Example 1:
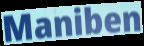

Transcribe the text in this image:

Maniben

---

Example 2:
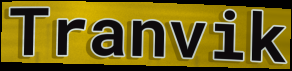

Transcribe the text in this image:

Tranvik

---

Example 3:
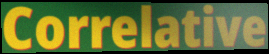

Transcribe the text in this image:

Correlative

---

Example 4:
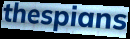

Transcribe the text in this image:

thespians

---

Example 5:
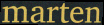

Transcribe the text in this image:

marten